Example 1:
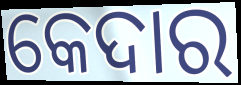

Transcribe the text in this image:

କେଦାର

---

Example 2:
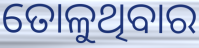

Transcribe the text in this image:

ତୋଳୁଥିବାର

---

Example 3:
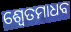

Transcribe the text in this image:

ଶ୍ୱେତମାଧବ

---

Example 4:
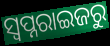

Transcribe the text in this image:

ସ୍ୱପ୍ନରାଇଜରୁ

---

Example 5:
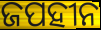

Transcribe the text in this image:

ଜପହୀନ